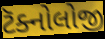
ટૅક્નોલોજી